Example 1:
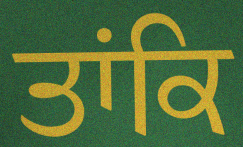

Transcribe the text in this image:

ਤਾਂਕਿ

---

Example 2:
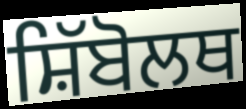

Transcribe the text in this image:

ਸ਼ਿੱਬੋਲਥ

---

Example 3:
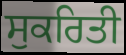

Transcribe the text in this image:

ਸੁਕਰਿਤੀ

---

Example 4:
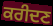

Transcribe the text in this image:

ਕਰੀਦਣ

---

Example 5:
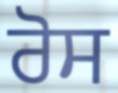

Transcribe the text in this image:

ਰੋਸ